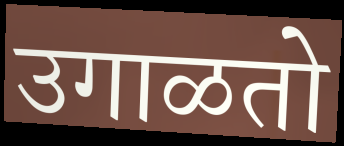
उगाळतो